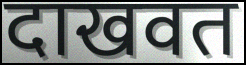
दाखवत